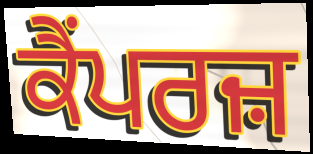
ਕੈਂਪਰਜ਼